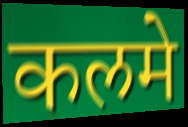
कलमे